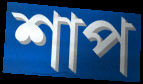
শাপ